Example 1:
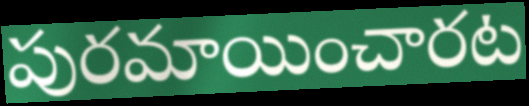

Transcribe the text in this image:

పురమాయించారట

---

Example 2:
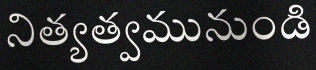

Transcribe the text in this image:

నిత్యత్వమునుండి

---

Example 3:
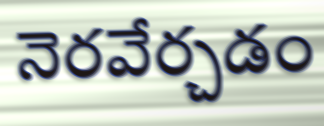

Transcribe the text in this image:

నెరవేర్చడం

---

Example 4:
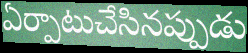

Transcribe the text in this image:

ఏర్పాటుచేసినప్పుడు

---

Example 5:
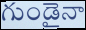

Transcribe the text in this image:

గుండైనా